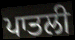
ਪਾਤਲੀ